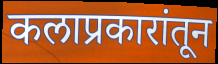
कलाप्रकारांतून